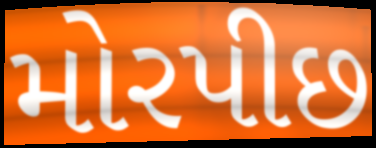
મોરપીછ